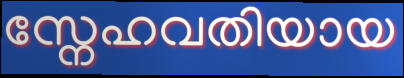
സ്നേഹവതിയായ